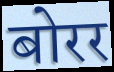
बोरर